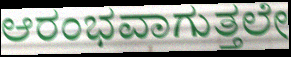
ಆರಂಭವಾಗುತ್ತಲೇ